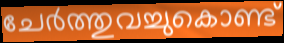
ചേർത്തുവച്ചുകൊണ്ട്